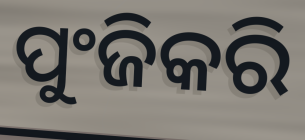
ପୁଂଜିକରି